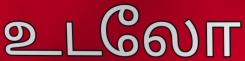
உடலோ